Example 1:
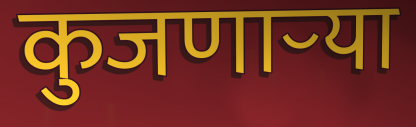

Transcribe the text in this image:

कुजणाऱ्या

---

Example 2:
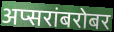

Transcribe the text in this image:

अप्सरांबरोबर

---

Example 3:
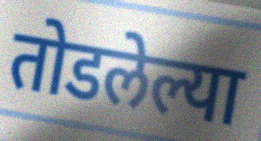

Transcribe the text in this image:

तोडलेल्या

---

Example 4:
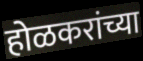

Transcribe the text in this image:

होळकरांच्या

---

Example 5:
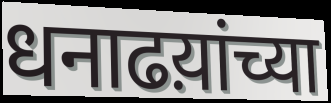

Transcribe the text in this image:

धनाढय़ांच्या